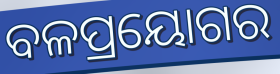
ବଳପ୍ରୟୋଗର